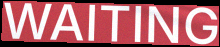
WAITING